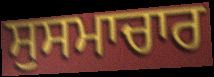
ਸੁਸਮਾਚਾਰ